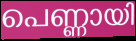
പെണ്ണായി